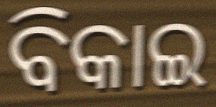
ବିକାଇ